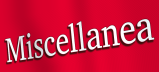
Miscellanea